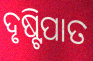
ଦୃଷ୍ଟିପାତ